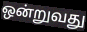
ஒன்றுவது